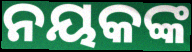
ନୟକଙ୍କ